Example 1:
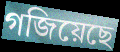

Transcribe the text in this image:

গজিয়েছে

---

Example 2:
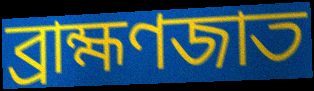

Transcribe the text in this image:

ব্রাহ্মণজাত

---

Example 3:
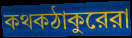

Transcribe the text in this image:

কথকঠাকুরেরা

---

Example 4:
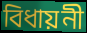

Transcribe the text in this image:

বিধায়নী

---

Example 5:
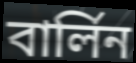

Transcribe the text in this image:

বার্লিন